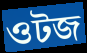
ওটজ